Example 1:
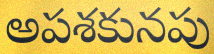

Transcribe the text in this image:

అపశకునపు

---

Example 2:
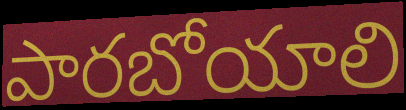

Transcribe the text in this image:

పారబోయాలి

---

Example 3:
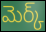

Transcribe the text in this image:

మెర్క్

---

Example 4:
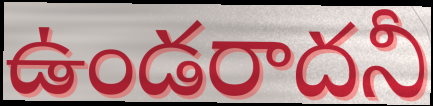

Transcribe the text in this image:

ఉండరాదనీ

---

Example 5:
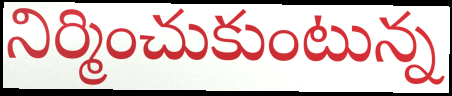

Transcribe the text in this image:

నిర్మించుకుంటున్న